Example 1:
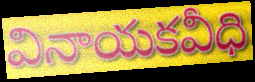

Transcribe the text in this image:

వినాయకవీధి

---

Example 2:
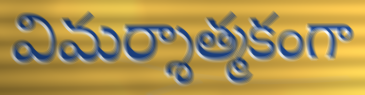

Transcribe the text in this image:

విమర్శాత్మకంగా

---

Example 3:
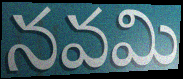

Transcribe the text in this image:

నవమి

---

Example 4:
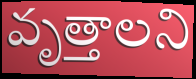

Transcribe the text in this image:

వృత్తాలని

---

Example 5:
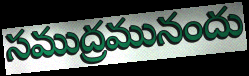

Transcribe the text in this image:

సముద్రమునందు